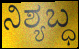
ನಿಶ್ಯಬ್ಧ